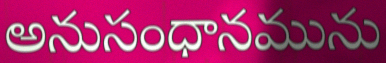
అనుసంధానమును